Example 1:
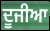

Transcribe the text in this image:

ਦੂਜੀਆ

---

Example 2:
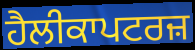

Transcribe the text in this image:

ਹੈਲੀਕਾਪਟਰਜ਼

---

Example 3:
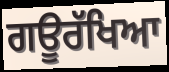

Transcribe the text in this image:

ਗਊਰੱਖਿਆ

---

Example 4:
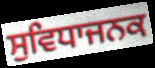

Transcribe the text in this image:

ਸੁਵਿਧਾਜਨਕ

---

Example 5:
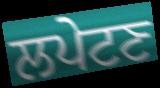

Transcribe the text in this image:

ਲਪੇਟਣ